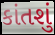
કાંતશું